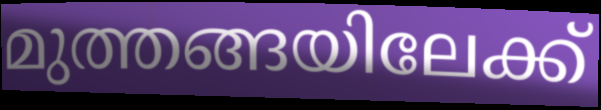
മുത്തങ്ങയിലേക്ക്